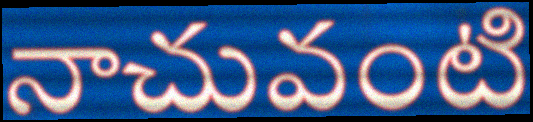
నాచువంటి